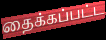
தைக்கப்பட்ட